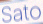
Sato